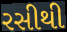
રસીથી